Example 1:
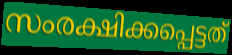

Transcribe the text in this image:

സംരക്ഷിക്കപ്പെട്ടത്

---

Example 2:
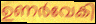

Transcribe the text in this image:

ഉണർവേകി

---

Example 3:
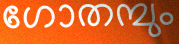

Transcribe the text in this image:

ഗോതമ്പും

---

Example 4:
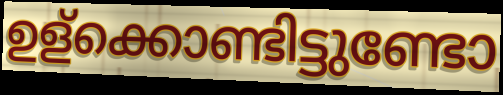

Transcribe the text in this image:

ഉള്ക്കൊണ്ടിട്ടുണ്ടോ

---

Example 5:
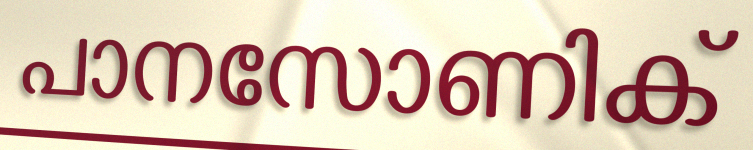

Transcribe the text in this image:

പാനസോണിക്